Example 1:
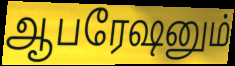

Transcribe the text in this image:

ஆபரேஷனும்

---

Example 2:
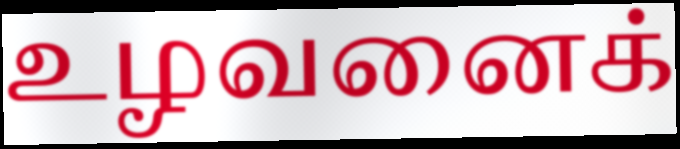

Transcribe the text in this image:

உழவனைக்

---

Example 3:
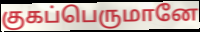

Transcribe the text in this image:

குகப்பெருமானே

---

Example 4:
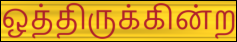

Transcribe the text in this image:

ஒத்திருக்கின்ற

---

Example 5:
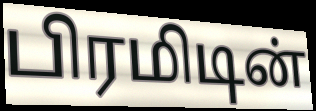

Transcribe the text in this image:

பிரமிடின்